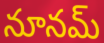
నూనమ్